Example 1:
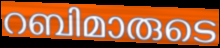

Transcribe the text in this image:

റബിമാരുടെ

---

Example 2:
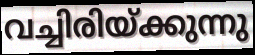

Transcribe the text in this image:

വച്ചിരിയ്ക്കുന്നു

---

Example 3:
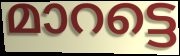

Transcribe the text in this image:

മാറട്ടെ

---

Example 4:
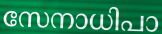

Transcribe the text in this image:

സേനാധിപാ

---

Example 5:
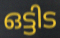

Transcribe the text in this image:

ഒട്ടിട